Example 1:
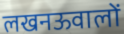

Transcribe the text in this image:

लखनऊवालों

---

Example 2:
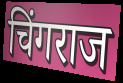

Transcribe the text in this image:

चिंगराज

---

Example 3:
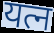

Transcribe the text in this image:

यत्न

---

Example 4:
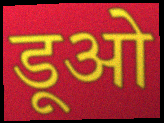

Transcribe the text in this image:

डूओ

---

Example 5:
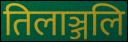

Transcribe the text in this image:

तिलाञ्जलि